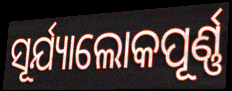
ସୂର୍ଯ୍ୟାଲୋକପୂର୍ଣ୍ଣ